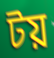
টয়